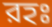
রহঃ